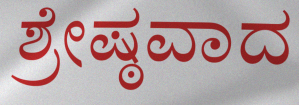
ಶ್ರೇಷ್ಠವಾದ